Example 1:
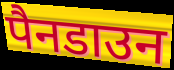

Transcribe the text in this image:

पैनडाउन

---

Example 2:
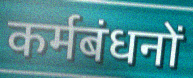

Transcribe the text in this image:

कर्मबंधनों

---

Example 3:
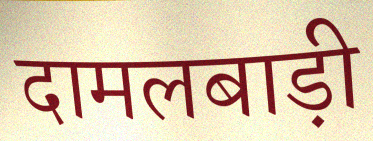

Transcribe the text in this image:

दामलबाड़ी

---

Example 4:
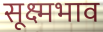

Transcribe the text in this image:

सूक्ष्मभाव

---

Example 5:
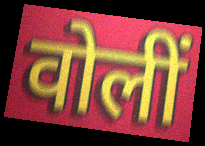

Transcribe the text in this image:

वोलीं